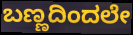
ಬಣ್ಣದಿಂದಲೇ